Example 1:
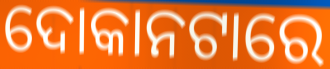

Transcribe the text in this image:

ଦୋକାନଟାରେ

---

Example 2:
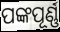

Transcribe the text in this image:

ପଙ୍କପୂର୍ଣ୍ଣ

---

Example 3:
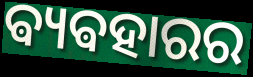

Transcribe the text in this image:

ଵ୍ୟଵହାରର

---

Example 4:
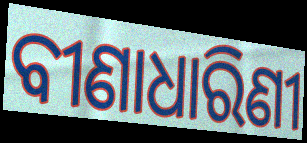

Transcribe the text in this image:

ବୀଣାଧାରିଣୀ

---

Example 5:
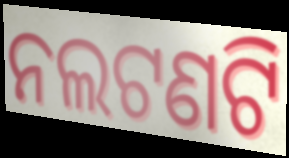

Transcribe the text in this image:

ନଲଟଣଟି